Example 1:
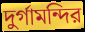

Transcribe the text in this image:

দুর্গামন্দির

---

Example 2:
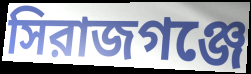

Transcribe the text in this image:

সিরাজগঞ্জে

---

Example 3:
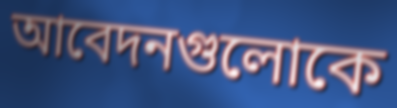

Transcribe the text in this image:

আবেদনগুলোকে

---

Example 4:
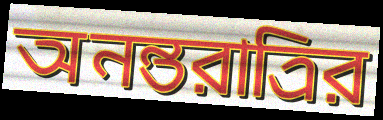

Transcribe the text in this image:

অনন্তরাত্রির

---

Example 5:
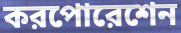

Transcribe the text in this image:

করপোরেশেন